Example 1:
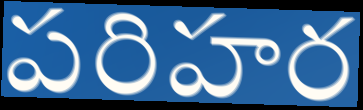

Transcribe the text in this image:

పరిహర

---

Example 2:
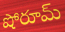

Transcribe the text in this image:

షోరూమ్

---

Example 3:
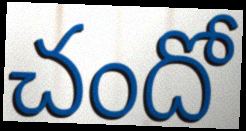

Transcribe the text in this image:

చందో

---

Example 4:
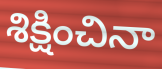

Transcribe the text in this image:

శిక్షించినా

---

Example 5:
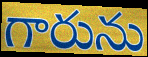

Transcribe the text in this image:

గారును